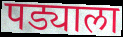
पड्याला